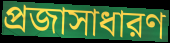
প্রজাসাধারণ